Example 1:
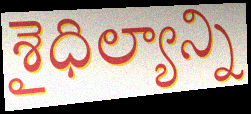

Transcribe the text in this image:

శైధిల్యాన్ని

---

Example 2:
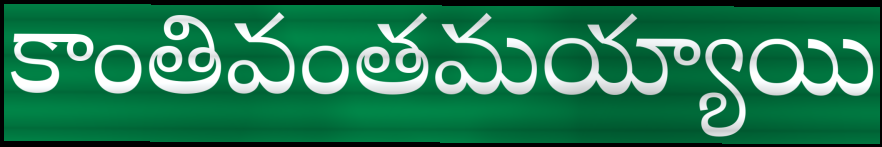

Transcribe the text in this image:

కాంతివంతమయ్యాయి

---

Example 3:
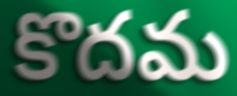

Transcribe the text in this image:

కొదమ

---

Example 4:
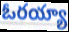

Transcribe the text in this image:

ఓరయ్యా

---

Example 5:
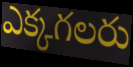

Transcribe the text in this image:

ఎక్కగలరు